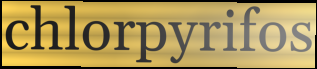
chlorpyrifos